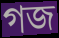
গজ